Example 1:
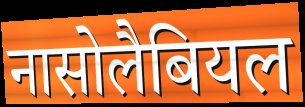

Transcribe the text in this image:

नासोलैबियल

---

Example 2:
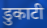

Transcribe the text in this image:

डुकाटी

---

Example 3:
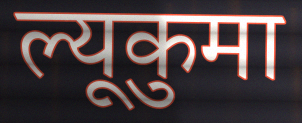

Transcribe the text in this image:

ल्यूकुमा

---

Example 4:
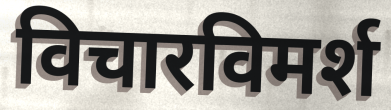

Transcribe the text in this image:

विचारविमर्श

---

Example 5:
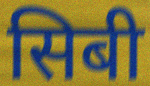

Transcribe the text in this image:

सिबी